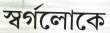
স্বর্গলোকে